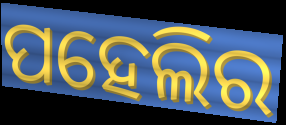
ପହେଲିର